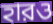
হারও